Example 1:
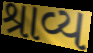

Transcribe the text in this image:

શ્રાવ્ય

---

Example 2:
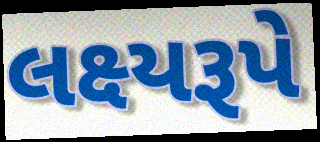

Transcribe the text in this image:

લક્ષ્યરૂપે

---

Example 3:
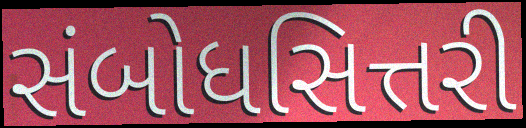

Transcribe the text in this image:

સંબોધસિત્તરી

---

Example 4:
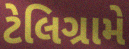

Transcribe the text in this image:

ટેલિગ્રામે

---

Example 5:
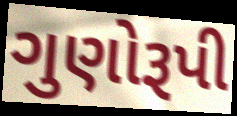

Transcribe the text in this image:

ગુણોરૂપી